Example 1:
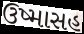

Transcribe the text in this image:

ઉષ્માસહ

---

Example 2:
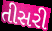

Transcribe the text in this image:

તીસરી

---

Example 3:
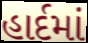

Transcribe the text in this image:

હાર્દમાં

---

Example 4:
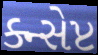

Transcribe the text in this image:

ક્ન્સેપ્ટ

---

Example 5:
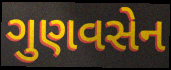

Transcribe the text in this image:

ગુણવસેન